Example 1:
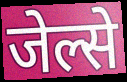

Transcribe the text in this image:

जेल्से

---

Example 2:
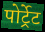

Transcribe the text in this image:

पोर्ट्रेट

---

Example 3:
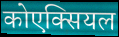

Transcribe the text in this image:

कोएक्सियल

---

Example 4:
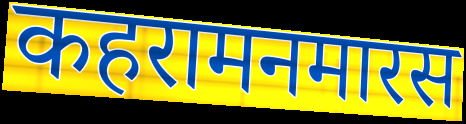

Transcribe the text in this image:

कहरामनमारस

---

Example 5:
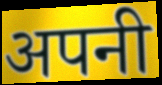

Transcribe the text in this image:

अपनी